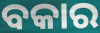
ବକାର